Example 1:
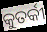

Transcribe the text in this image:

କୁତର୍କୀ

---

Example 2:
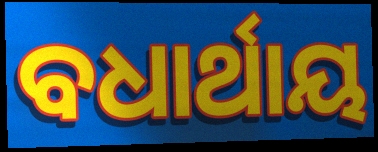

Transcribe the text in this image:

ବଧାର୍ଥାୟ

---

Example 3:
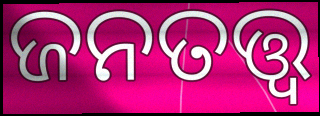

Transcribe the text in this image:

ଜନତତ୍ତ୍ୱ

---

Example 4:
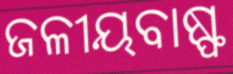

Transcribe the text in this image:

ଜଳୀୟବାଷ୍ଫ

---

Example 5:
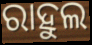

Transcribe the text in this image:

ରାହୁଲ